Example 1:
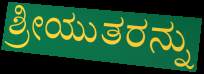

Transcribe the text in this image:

ಶ್ರೀಯುತರನ್ನು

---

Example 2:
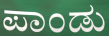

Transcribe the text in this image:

ಪಾಂಡು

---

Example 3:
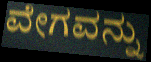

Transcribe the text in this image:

ವೇಗವನ್ನು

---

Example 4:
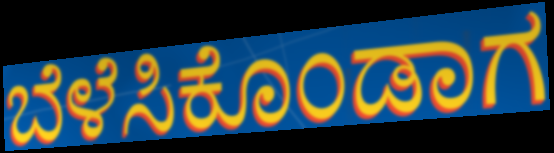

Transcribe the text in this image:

ಬೆಳೆಸಿಕೊಂಡಾಗ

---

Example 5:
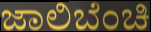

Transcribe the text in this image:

ಜಾಲಿಬೆಂಚಿ